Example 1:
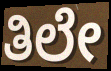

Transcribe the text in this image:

ತಿಲೇ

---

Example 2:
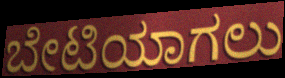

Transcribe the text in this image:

ಬೇಟಿಯಾಗಲು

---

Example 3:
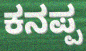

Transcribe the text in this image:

ಕನಪ್ಪ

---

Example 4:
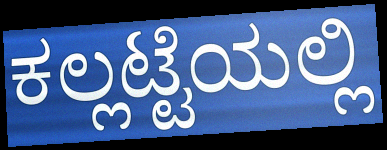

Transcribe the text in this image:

ಕಲ್ಲಟ್ಟೆಯಲ್ಲಿ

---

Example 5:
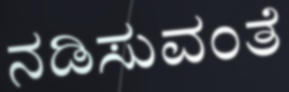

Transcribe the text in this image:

ನಡಿಸುವಂತೆ